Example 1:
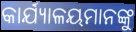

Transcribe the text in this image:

କାର୍ଯ୍ୟାଳୟମାନଙ୍କୁ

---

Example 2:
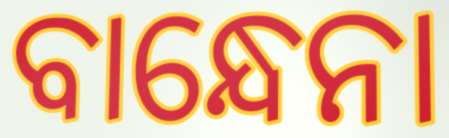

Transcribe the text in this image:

ବାନ୍ଧେନା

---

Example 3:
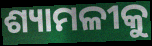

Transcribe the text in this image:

ଶ୍ୟାମଳୀକୁ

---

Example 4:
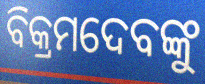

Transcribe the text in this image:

ବିକ୍ରମଦେବଙ୍କୁ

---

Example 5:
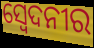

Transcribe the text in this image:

ସ୍ୱେଦନୀର